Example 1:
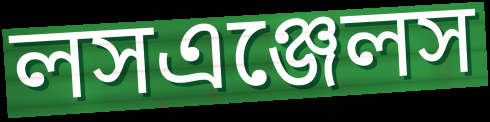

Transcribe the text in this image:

লসএঞ্জেলস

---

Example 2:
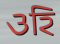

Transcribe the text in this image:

ওহি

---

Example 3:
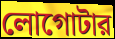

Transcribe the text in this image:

লোগোটার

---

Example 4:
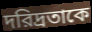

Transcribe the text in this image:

দরিদ্রতাকে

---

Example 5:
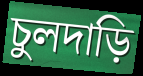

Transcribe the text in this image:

চুলদাড়ি